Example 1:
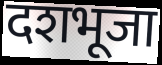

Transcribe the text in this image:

दशभूजा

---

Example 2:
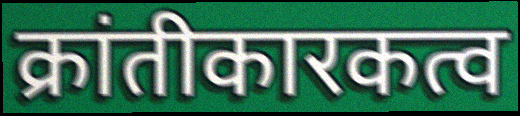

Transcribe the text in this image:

क्रांतीकारकत्व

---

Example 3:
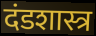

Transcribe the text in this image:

दंडशास्त्र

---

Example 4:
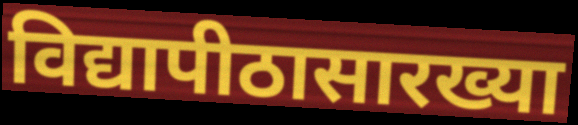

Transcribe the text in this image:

विद्यापीठासारख्या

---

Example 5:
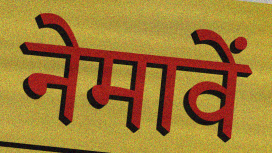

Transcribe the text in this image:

नेमावें